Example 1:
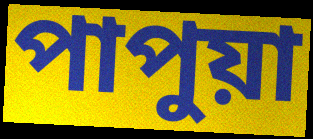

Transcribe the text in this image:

পাপুয়া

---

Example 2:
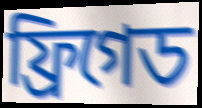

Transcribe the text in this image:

ফ্রিগেড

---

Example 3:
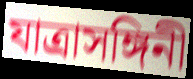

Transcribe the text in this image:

যাত্রাসঙ্গিনী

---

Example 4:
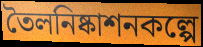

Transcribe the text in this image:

তৈলনিষ্কাশনকল্পে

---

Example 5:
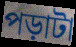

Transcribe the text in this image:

পড়াটা